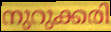
നുറുക്കരി